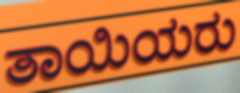
ತಾಯಿಯರು